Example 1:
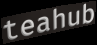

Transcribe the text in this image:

teahub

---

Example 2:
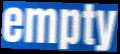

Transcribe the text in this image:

empty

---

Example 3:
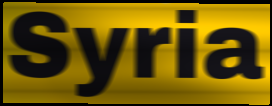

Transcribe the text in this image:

Syria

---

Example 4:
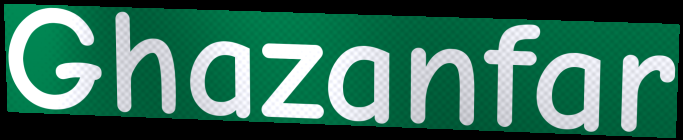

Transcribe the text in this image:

Ghazanfar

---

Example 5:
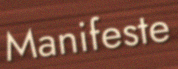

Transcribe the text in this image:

Manifeste